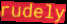
rudely